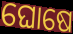
ଘୋଷେ